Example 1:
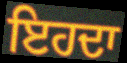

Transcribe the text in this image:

ਇਹਦਾ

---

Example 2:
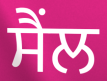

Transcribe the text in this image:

ਸੈਂਲ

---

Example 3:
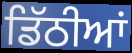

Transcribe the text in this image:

ਡਿੱਠੀਆਂ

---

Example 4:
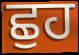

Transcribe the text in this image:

ਛੁਹ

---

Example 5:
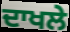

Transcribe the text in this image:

ਦਾਖਲੇ